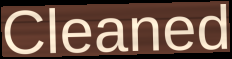
Cleaned